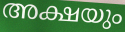
അക്ഷയും